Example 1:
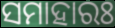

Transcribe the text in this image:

ସମାହାରଃ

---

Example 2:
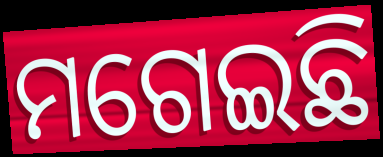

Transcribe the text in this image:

ମଗେଇଛି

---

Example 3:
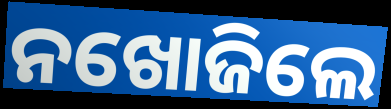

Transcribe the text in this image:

ନଖୋଜିଲେ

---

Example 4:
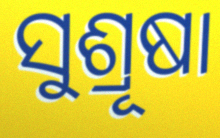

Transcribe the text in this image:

ସୁଶ୍ରୂଷା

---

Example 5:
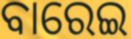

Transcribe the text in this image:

ବାରେଇ